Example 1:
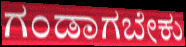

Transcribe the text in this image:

ಗಂಡಾಗಬೇಕು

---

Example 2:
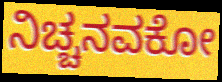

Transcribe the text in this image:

ನಿಚ್ಚನವಕೋ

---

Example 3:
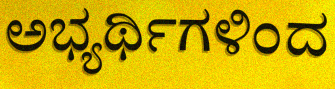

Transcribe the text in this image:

ಅಭ್ಯರ್ಥಿಗಳಿಂದ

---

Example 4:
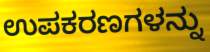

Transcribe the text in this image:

ಉಪಕರಣಗಳನ್ನು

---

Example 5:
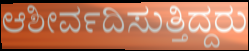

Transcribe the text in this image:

ಆಶೀರ್ವದಿಸುತ್ತಿದ್ದರು